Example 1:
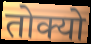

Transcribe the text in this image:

तोक्यो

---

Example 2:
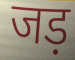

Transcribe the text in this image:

जड़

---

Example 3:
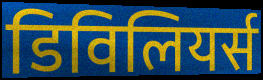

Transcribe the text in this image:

डिविलियर्स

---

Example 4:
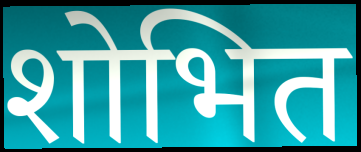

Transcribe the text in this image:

शोभित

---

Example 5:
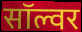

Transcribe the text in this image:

सॉल्वर